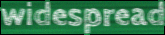
widespread